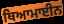
ਥਿਆਮਾਈਨ